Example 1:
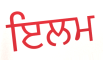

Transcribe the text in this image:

ਇਲਮ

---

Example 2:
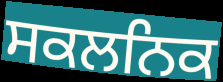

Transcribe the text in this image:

ਸਕਲਨਿਕ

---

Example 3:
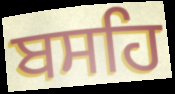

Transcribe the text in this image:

ਬਸਹਿ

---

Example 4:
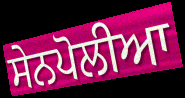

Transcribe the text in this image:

ਸੇਨਪੋਲੀਆ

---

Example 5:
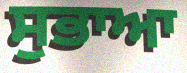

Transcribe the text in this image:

ਸੁਭਾਆ